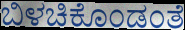
ಬಿಳಚಿಕೊಂಡಂತೆ